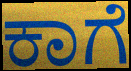
ಕಾಗೆ